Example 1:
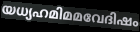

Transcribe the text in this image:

യധ്യഹമിമമവേദിഷം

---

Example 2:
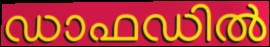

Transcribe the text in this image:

ഡാഫഡിൽ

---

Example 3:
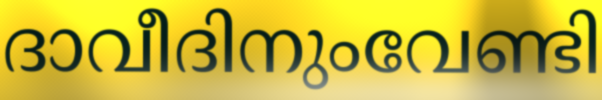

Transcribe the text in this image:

ദാവീദിനുംവേണ്ടി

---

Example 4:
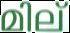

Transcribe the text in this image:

മില്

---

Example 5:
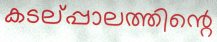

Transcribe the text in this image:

കടല്പ്പാലത്തിന്റെ